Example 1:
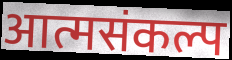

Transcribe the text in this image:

आत्मसंकल्प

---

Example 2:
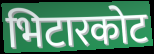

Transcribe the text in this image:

भिटारकोट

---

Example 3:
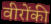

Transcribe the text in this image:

वीरोंकी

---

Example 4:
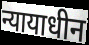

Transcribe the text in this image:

न्यायाधीन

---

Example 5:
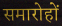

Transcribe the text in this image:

समारोहों